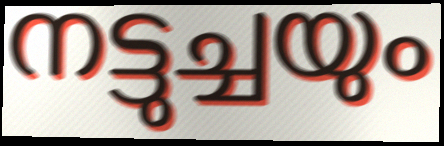
നട്ടുച്ചയും